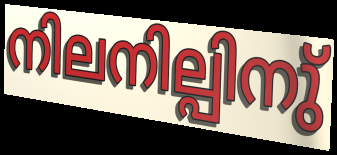
നിലനില്പിനു്